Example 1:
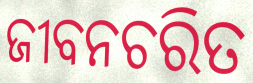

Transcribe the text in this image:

ଜୀବନଚରିତ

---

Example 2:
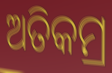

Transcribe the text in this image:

ଅତିକମ୍ର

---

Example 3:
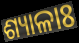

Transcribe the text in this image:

ଶ୍ୟାଳାଃ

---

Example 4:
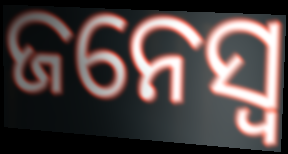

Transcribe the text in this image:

ଜନେସ୍ୱ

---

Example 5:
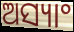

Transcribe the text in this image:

ଅସ୍ୟାଂ